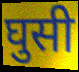
घुसी